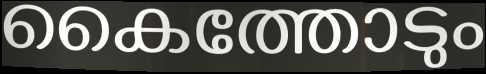
കൈത്തോടും